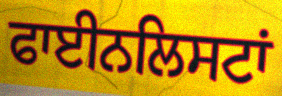
ਫਾਈਨਲਿਸਟਾਂ